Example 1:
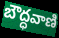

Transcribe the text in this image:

బౌద్ధవాణి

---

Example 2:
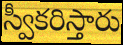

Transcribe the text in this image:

స్వీకరిస్తారు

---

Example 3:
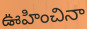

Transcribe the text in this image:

ఊహించినా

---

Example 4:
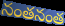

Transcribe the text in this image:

నంతనంత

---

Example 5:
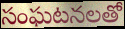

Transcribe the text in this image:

సంఘటనలతో